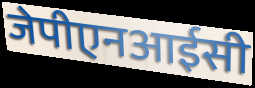
जेपीएनआईसी